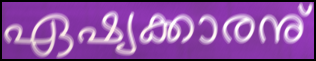
ഏഷ്യക്കാരനു്